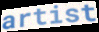
artist